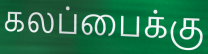
கலப்பைக்கு